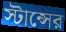
স্টান্সের